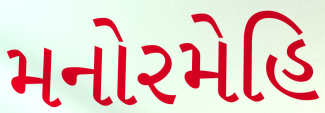
મનોરમેહિ